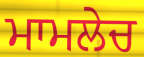
ਮਾਮਲੇਚ